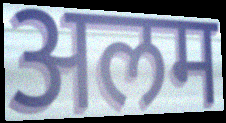
अलम